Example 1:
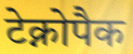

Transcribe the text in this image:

टेक्नोपैक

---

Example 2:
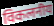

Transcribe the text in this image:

विकलनीय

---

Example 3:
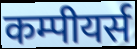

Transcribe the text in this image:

कम्पीयर्स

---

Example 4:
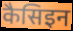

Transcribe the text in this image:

कैसिइन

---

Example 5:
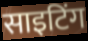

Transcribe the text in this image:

साइटिंग